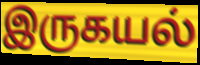
இருகயல்